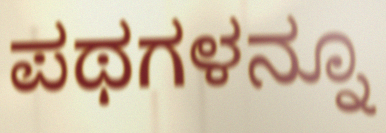
ಪಥಗಳನ್ನೂ